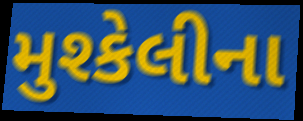
મુશ્કેલીના